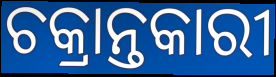
ଚକ୍ରାନ୍ତକାରୀ